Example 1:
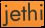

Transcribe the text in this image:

jethi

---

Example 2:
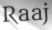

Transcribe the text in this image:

Raaj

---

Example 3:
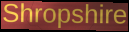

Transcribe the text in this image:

Shropshire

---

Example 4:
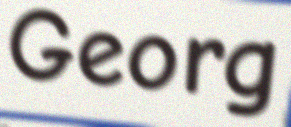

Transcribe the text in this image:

Georg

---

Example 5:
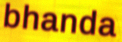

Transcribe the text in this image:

bhanda